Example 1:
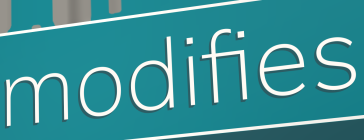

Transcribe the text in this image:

modifies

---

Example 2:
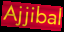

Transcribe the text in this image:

Ajjibal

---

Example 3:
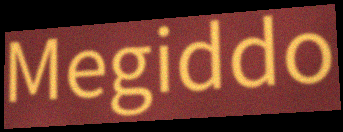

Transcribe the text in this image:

Megiddo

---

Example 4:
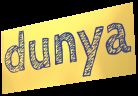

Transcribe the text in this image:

dunya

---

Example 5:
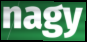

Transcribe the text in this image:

nagy